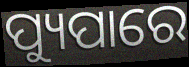
ପ୍ୟୁପାରେ